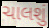
ચાલશું